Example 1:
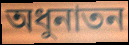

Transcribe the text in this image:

অধুনাতন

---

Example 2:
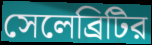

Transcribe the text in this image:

সেলেব্রিটির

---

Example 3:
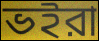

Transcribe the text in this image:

ভইরা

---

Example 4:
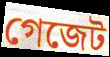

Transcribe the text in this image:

গেজেট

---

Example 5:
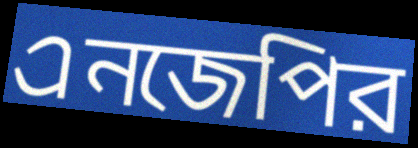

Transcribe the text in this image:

এনজেপির